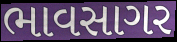
ભાવસાગર